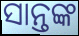
ସାନ୍ତଙ୍କ